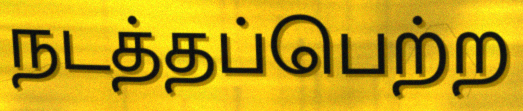
நடத்தப்பெற்ற